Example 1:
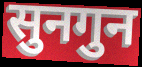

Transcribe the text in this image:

सुनगुन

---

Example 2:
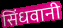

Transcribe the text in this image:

सिंधवानी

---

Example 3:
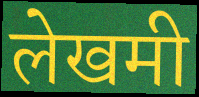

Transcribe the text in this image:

लेखमी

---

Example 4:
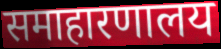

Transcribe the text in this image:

समाहारणालय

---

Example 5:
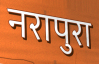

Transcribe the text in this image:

नरापुरा